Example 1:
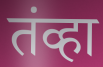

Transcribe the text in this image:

तंव्हा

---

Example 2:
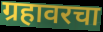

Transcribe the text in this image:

ग्रहावरचा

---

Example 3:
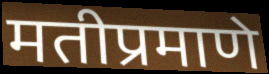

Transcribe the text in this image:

मतीप्रमाणे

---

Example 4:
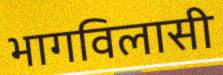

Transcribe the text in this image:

भागविलासी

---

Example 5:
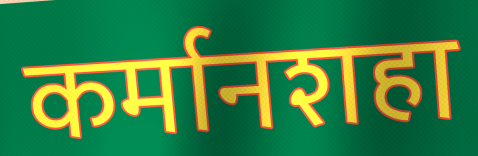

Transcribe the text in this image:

कर्मानशहा